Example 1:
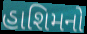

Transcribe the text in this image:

હાશિમનો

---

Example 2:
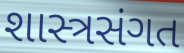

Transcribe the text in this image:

શાસ્ત્રસંગત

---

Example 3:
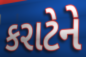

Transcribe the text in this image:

કરાટેને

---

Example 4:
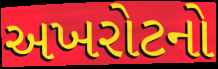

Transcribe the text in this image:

અખરોટનો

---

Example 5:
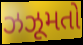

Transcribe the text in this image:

ઝઝૂમતો